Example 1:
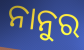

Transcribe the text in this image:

ନାନୁର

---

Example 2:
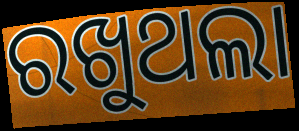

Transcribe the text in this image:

ରଖୁଥଲା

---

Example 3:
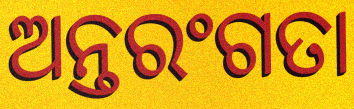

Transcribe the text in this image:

ଅନ୍ତରଂଗତା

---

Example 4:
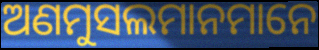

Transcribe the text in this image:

ଅଣମୁସଲମାନମାନେ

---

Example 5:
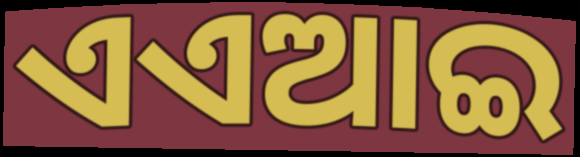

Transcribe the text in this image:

ଏଏଆଇ